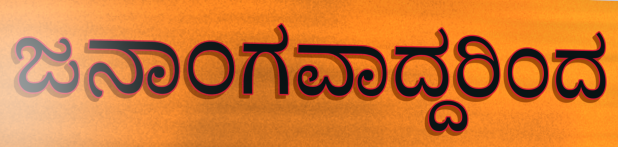
ಜನಾಂಗವಾದ್ದರಿಂದ